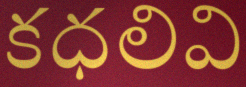
కధలివి